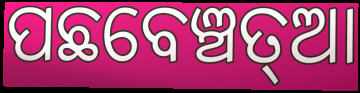
ପଛବେଞ୍ଚତ୍ଆ